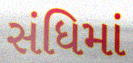
સંધિમાં